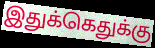
இதுக்கெதுக்கு